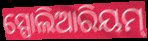
ସ୍ପୋଲିଆରିୟମ୍